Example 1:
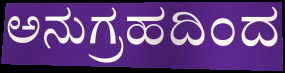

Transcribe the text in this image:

ಅನುಗ್ರಹದಿಂದ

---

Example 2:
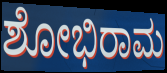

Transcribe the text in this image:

ಶೋಭಿರಾಮ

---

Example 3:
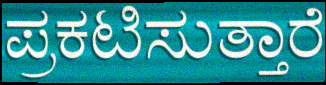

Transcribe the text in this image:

ಪ್ರಕಟಿಸುತ್ತಾರೆ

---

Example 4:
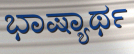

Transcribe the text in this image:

ಭಾಷ್ಯಾರ್ಥ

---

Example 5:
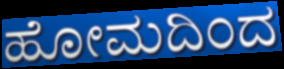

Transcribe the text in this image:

ಹೋಮದಿಂದ